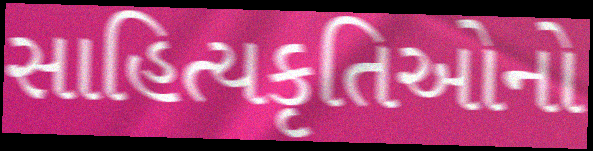
સાહિત્યકૃતિઓનો